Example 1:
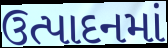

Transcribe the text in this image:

ઉત્પાદનમાં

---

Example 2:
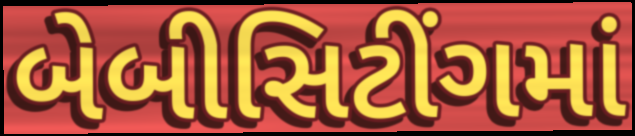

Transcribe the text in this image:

બેબીસિટીંગમાં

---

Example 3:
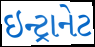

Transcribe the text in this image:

ઇન્ટ્રાનેટ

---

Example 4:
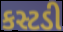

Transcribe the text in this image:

કસ્ટડી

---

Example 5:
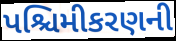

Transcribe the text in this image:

પશ્ચિમીકરણની